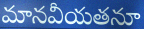
మానవీయతనూ